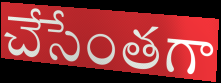
చేసేంతగా